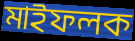
মাইফলক